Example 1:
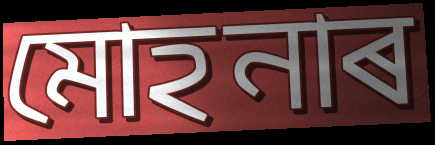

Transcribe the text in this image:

মোহনাৰ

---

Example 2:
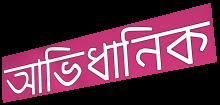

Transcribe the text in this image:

আভিধানিক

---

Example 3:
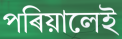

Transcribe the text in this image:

পৰিয়ালেই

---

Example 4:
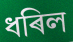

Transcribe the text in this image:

ধৰিল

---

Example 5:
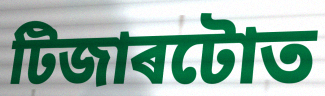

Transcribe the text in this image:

টিজাৰটোত